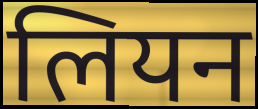
लियन